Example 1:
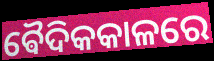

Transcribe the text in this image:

ଵୈଦିକକାଳରେ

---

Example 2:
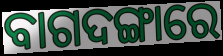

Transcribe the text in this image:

ବାଗଦଙ୍ଗାରେ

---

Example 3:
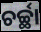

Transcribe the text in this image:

ଚର୍ଚ୍ଛା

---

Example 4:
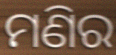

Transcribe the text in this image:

ମଣିର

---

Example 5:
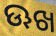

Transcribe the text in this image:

ଊଖ